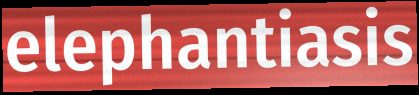
elephantiasis